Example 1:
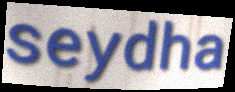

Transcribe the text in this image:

seydha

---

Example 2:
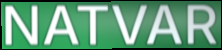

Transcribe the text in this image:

NATVAR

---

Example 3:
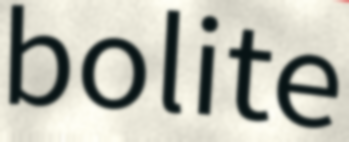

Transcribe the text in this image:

bolite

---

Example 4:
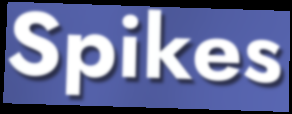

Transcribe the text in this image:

Spikes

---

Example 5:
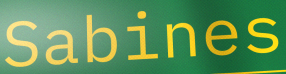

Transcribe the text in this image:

Sabines